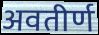
अवतीर्ण